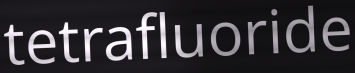
tetrafluoride